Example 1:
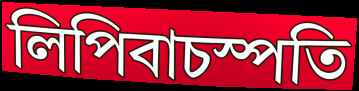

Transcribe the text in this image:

লিপিবাচস্পতি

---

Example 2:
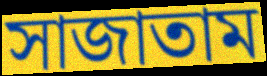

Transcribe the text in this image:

সাজাতাম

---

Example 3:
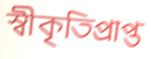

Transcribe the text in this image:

স্বীকৃতিপ্রাপ্ত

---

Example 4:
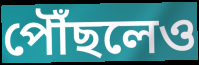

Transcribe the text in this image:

পৌঁছলেও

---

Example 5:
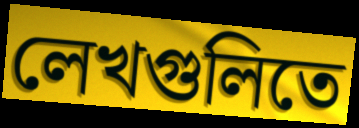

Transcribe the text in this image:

লেখগুলিতে